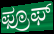
ಫ್ರೂಫ್